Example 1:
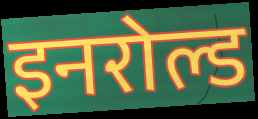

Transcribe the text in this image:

इनरोल्ड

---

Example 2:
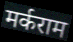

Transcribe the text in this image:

मर्कराम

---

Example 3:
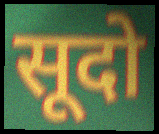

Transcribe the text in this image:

सूदो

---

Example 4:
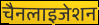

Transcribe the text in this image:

चैनलाइजेशन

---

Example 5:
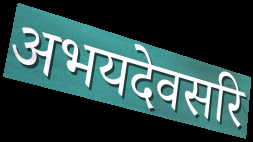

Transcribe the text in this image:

अभयदेवसरि